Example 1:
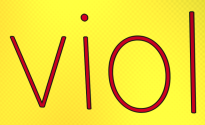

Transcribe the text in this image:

viol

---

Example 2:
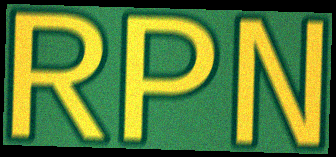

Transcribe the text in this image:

RPN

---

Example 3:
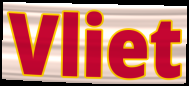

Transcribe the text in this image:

Vliet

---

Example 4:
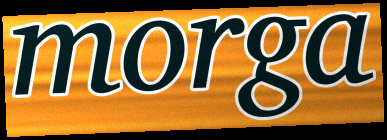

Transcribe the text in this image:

morga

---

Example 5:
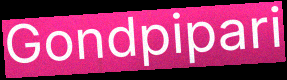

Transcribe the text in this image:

Gondpipari